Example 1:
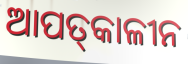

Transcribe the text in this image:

ଆପତ୍‌କାଳୀନ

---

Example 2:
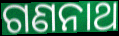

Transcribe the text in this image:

ଗଣନାଥ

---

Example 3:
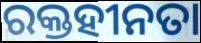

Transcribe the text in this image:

ରକ୍ତହୀନତା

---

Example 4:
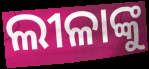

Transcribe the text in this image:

ଲୀଳାଙ୍କୁ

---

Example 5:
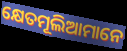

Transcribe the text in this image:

କ୍ଷେତମୂଲିଆମାନେ